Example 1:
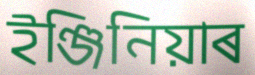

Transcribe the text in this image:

ইঞ্জিনিয়াৰ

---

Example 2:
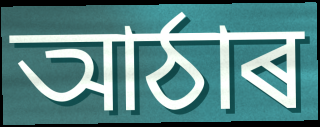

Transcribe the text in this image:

আঠাৰ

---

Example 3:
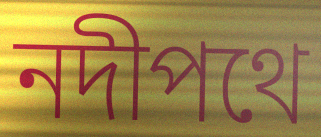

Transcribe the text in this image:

নদীপথে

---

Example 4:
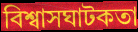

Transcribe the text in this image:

বিশ্বাসঘাটকতা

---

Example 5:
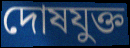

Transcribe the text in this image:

দোষযুক্ত